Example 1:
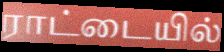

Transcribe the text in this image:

ராட்டையில்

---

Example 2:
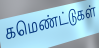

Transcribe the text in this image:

கமெண்ட்டுகள்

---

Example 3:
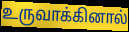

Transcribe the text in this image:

உருவாக்கினால்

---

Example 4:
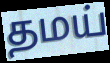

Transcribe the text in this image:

தமய்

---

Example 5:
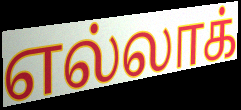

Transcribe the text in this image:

எல்லாக்